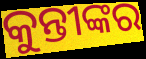
କୁନ୍ତୀଙ୍କର